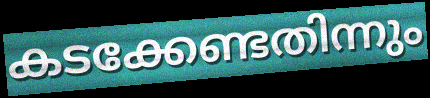
കടക്കേണ്ടതിന്നും